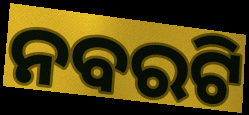
ନବରଟି